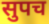
सुपच